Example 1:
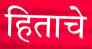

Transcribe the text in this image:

हिताचे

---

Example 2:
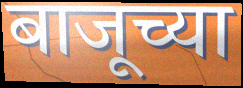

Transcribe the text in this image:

बाजूच्या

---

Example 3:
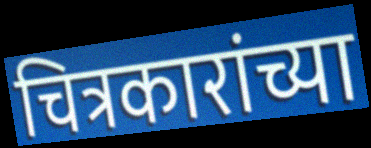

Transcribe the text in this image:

चित्रकारांच्या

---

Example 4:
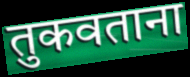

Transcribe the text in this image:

तुकवताना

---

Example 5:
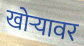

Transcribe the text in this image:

खोऱ्यावर